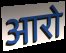
आरो